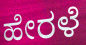
ಹೇರಳೆ